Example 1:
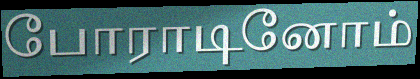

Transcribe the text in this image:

போராடினோம்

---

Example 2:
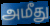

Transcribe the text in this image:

அமீது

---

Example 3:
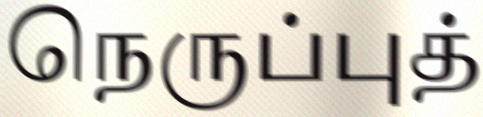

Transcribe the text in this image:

நெருப்புத்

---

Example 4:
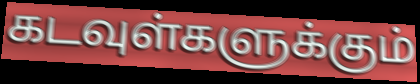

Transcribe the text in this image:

கடவுள்களுக்கும்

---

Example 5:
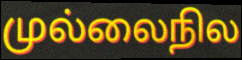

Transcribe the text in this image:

முல்லைநில